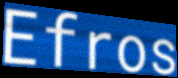
Efros